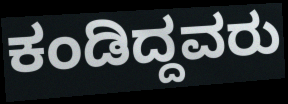
ಕಂಡಿದ್ದವರು